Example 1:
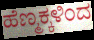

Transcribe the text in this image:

ಹೆಣ್ಮಕ್ಕಳಿಂದ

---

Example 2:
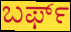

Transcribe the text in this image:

ಬರ್ಫ್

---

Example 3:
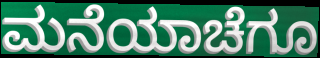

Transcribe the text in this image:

ಮನೆಯಾಚೆಗೂ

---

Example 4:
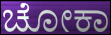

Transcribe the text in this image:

ಚೋಕಾ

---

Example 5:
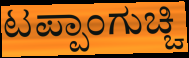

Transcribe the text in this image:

ಟಪ್ಪಾಂಗುಚ್ಚಿ